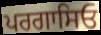
ਪਰਗਾਸਿਓ